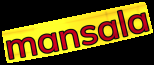
mansala